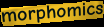
morphomics